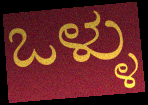
ಒಳ್ಳು